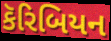
કૅરિબિયન